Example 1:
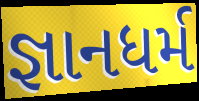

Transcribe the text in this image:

જ્ઞાનધર્મ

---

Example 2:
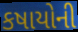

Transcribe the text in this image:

કષાયોની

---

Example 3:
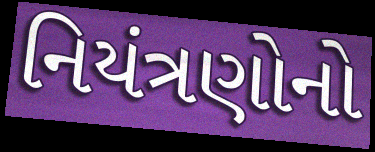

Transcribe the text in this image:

નિયંત્રણોનો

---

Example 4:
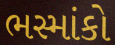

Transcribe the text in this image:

ભસ્માંકો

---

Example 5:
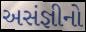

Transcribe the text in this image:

અસંજ્ઞીનો